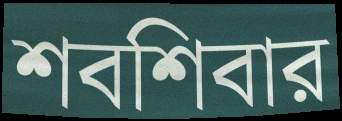
শবশিবার